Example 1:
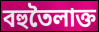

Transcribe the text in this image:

বহুতৈলাক্ত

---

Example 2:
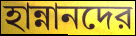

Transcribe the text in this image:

হান্নানদের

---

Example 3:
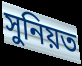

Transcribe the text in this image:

সুনিয়ত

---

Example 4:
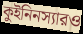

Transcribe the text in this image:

কুইনিনস্যারও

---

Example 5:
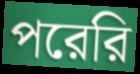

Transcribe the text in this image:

পরেরি